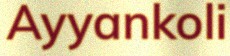
Ayyankoli